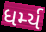
ધર્મ્ય